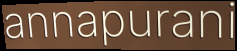
annapurani